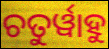
ଚତୁର୍ୱାହୁ